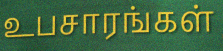
உபசாரங்கள்